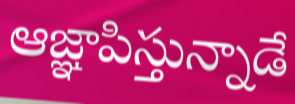
ఆజ్ఞాపిస్తున్నాడే